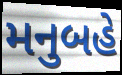
મનુબહે